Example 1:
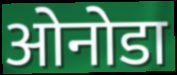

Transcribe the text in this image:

ओनोडा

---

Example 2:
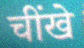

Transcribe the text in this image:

चींखे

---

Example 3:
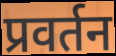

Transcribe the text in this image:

प्रवर्तन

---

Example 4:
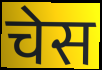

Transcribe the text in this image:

चेस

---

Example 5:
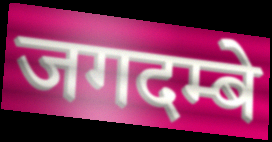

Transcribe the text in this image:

जगदम्बे